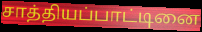
சாத்தியப்பாட்டினை